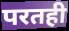
परतही